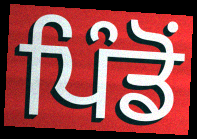
ਪਿੰਡੋਂ